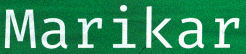
Marikar